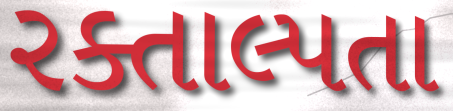
રક્તાલ્પતા